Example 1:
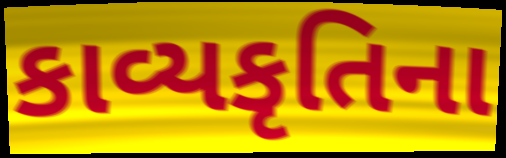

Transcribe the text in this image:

કાવ્યકૃતિના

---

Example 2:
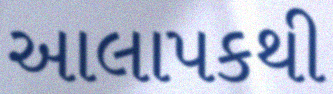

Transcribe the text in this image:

આલાપકથી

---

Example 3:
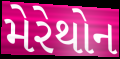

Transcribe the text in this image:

મેરેથોન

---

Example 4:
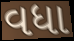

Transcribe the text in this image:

વધા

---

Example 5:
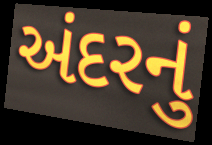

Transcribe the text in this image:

અંદરનું